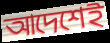
আদেশেই